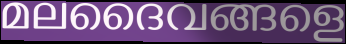
മലദൈവങ്ങളെ